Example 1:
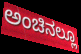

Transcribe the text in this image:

ಅಂಚಿನಲ್ಲೂ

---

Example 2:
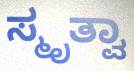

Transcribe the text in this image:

ಸ್ಮೃತ್ವಾ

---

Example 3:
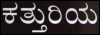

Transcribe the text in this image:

ಕತ್ತುರಿಯ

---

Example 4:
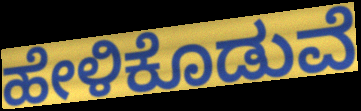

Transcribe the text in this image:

ಹೇಳಿಕೊಡುವೆ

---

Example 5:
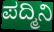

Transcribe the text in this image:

ಪದ್ಮಿನಿ